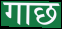
गाछ